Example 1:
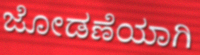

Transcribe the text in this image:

ಜೋಡಣೆಯಾಗಿ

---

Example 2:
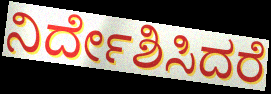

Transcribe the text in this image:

ನಿರ್ದೇಶಿಸಿದರೆ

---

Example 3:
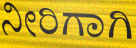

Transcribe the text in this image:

ನೀರಿಗಾಗಿ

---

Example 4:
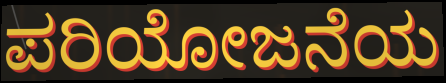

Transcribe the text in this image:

ಪರಿಯೋಜನೆಯ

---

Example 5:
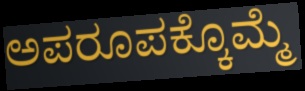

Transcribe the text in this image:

ಅಪರೂಪಕ್ಕೊಮ್ಮೆ